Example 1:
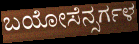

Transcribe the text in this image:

ಬಯೋಸೆನ್ಸರ್ಗಳ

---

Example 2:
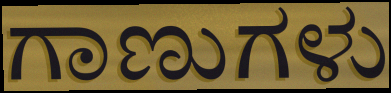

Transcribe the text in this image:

ಗಾಣುಗಳು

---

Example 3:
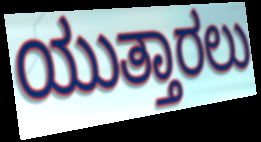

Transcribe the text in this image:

ಯುತ್ತಾರಲು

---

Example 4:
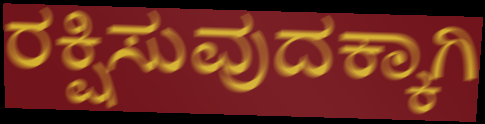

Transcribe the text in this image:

ರಕ್ಷಿಸುವುದಕ್ಕಾಗಿ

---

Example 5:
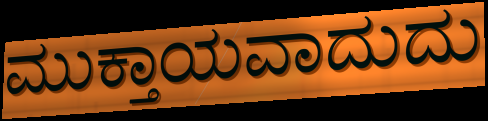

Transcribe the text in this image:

ಮುಕ್ತಾಯವಾದುದು